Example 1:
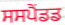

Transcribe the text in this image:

ਸਸਪੈਂਡਡ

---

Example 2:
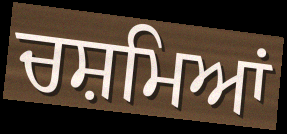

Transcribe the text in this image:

ਚਸ਼ਮਿਆਂ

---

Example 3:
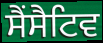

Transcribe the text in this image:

ਸੈਂਸੈਟਿਵ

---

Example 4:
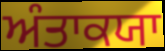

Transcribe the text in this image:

ਅੰਤਾਕਯਾ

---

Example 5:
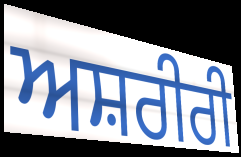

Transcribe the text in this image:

ਅਸ਼ਰੀਰੀ